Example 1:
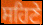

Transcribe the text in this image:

ਸਹਿਣੇ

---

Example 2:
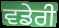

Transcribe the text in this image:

ਵਡੇਰੀ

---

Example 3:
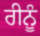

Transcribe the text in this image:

ਰੀਨੂੰ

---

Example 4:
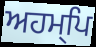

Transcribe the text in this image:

ਅਹਮ੍ਪਿ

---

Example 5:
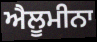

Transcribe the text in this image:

ਐਲੂਮੀਨਾ